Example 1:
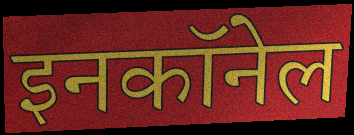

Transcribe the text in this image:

इनकॉनेल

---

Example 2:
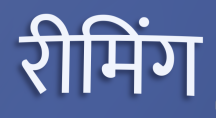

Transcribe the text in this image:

रीमिंग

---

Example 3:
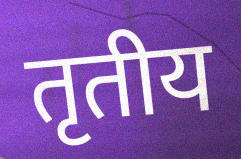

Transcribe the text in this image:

तृतीय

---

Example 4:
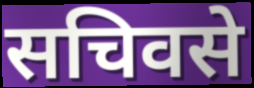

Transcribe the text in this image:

सचिवसे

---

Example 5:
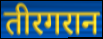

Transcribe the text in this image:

तीरगरान